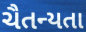
ચૈતન્યતા